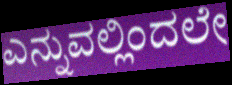
ಎನ್ನುವಲ್ಲಿಂದಲೇ